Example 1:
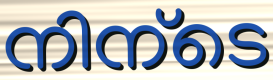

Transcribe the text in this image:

നിന്ടെ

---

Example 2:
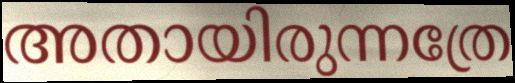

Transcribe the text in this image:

അതായിരുന്നത്രേ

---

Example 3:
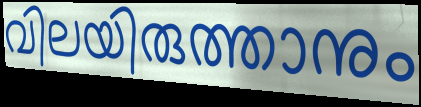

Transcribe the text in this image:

വിലയിരുത്താനും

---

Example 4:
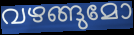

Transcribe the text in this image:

വഴങ്ങുമോ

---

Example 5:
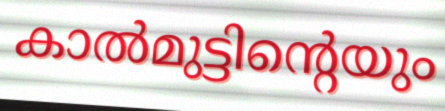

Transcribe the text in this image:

കാൽമുട്ടിന്റെയും